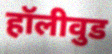
हॉलीवुड